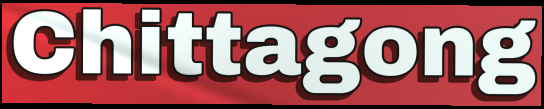
Chittagong